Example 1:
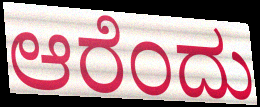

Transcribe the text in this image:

ಆರೆಂದು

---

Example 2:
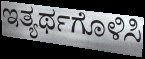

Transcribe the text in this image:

ಇತ್ಯರ್ಥಗೊಳಿಸಿ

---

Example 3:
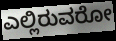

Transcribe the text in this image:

ಎಲ್ಲಿರುವರೋ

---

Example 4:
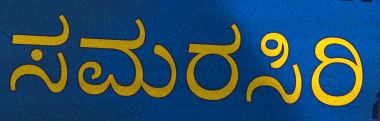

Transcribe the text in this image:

ಸಮರಸಿರಿ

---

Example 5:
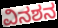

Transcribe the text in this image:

ವಿನಶನ